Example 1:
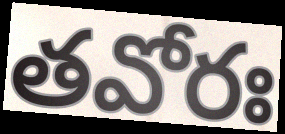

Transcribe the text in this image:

తవోరః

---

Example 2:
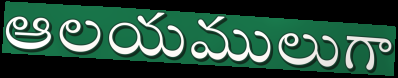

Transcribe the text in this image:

ఆలయములుగా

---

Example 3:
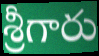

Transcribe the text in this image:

శ్రీగారు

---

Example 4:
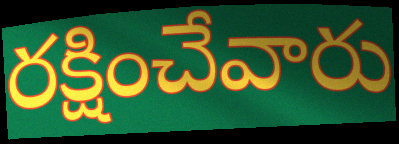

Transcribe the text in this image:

రక్షించేవారు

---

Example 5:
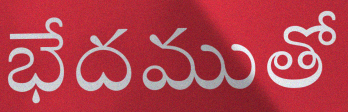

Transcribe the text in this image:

భేదముతో